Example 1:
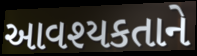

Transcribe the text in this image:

આવશ્યકતાને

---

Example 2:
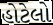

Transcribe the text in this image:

હોટેલો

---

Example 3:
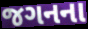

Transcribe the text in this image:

જગનના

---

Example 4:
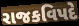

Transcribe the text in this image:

રાજકવિપદે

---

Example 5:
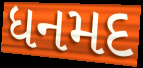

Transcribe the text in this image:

ધનમદ